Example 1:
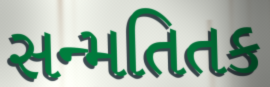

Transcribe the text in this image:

સન્મતિતક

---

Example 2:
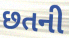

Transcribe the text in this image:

છતની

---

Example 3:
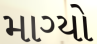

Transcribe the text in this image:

માગ્યો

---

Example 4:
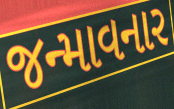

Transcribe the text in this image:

જન્માવનાર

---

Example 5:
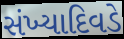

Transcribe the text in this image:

સંખ્યાદિવડે